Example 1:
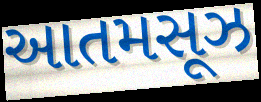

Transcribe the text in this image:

આતમસૂઝ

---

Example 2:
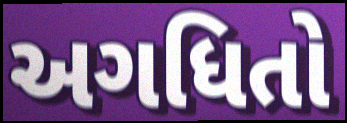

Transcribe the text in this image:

અગધિતો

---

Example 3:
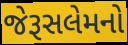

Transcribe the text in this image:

જેરૂસલેમનો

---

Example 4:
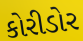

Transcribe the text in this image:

કોરીડોર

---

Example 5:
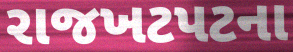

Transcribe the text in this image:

રાજખટપટના